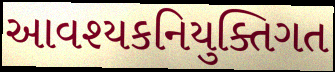
આવશ્યકનિયુક્તિગત